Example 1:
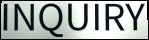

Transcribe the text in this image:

INQUIRY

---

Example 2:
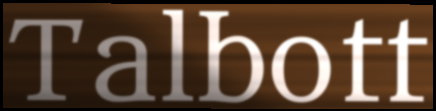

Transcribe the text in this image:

Talbott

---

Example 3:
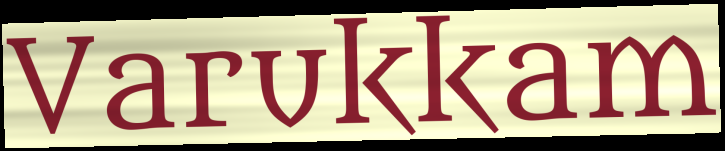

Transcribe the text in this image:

Varukkam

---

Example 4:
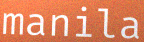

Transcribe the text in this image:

manila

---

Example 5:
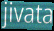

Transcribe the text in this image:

jivata